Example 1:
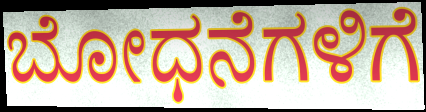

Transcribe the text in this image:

ಬೋಧನೆಗಳಿಗೆ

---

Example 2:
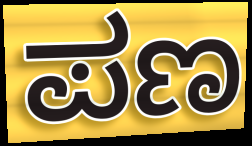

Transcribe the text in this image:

ಪಣ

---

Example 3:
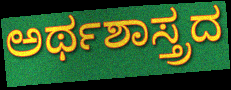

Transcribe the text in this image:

ಅರ್ಥಶಾಸ್ತ್ರದ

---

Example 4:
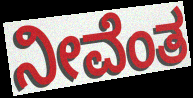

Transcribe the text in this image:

ನೀವೆಂತ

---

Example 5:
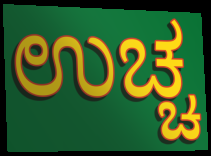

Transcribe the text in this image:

ಉಚ್ಚ